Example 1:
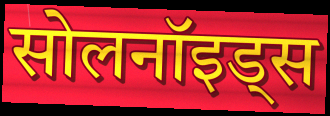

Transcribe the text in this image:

सोलनॉइड्स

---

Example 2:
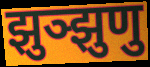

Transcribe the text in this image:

झुञ्झुणु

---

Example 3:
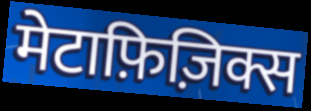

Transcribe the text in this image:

मेटाफ़िज़िक्स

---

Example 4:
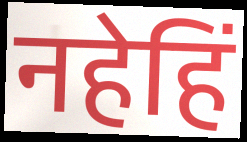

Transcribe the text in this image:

नहेहिं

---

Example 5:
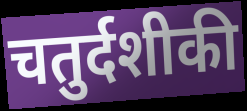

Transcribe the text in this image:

चतुर्दशीकी